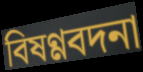
বিষণ্ণবদনা